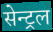
सेन्ट्रल